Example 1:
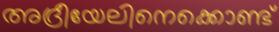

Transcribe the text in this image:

അദ്രീയേലിനെക്കൊണ്ട്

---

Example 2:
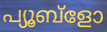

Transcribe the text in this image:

പ്യൂബ്ളോ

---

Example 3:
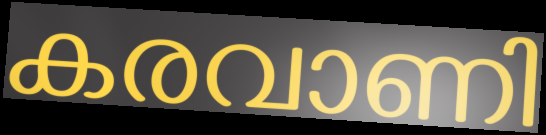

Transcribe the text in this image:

കരവാണി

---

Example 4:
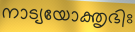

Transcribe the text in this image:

നാട്യയോക്തൃഭിഃ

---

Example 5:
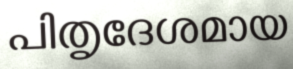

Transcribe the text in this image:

പിതൃദേശമായ